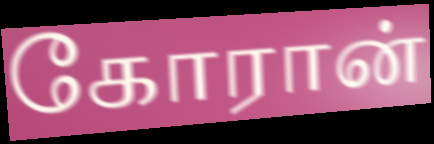
கோரான்